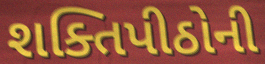
શક્તિપીઠોની